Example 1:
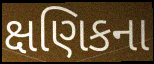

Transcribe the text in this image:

ક્ષણિકના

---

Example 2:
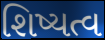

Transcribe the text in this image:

શિષ્યત્વ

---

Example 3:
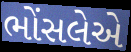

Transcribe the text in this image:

ભોંસલેએ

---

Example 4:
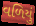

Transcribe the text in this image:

વળિયું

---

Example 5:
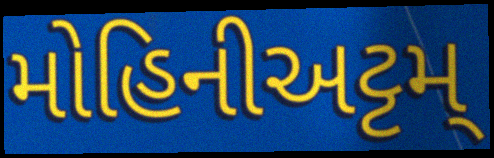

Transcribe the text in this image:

મોહિનીઅટ્ટમ્